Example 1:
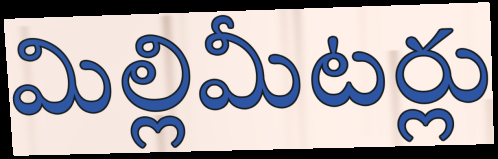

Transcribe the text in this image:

మిల్లిమీటర్లు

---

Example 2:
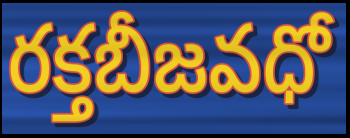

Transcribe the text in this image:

రక్తబీజవధో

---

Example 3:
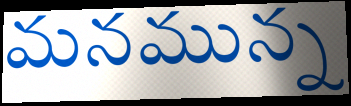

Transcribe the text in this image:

మనమున్న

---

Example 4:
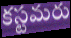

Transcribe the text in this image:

కస్టమరు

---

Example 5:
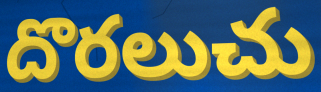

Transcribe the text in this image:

దొరలుచు